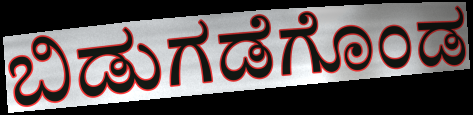
ಬಿಡುಗಡೆಗೊಂಡ